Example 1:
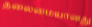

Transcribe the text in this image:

தலைமையானது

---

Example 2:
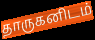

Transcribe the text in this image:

தாருகனிடம்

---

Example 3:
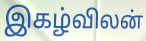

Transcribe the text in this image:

இகழ்விலன்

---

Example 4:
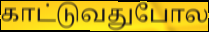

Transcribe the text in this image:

காட்டுவதுபோல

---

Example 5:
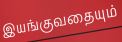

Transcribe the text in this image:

இயங்குவதையும்